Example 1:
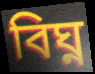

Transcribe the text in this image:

বিঘ্ন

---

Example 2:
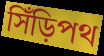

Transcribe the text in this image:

সিঁড়িপথ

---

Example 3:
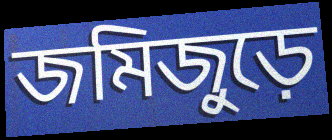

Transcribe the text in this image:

জমিজুড়ে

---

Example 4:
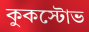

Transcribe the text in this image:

কুকস্টোভ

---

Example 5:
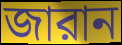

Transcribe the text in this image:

জারান